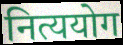
नित्ययोग